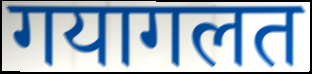
गयागलत